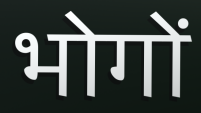
भोगों